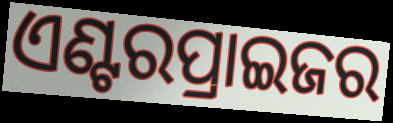
ଏଣ୍ଟରପ୍ରାଇଜର